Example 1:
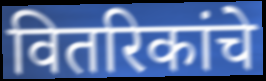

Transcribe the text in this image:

वितरिकांचे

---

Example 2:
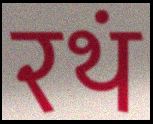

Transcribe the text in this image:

रथं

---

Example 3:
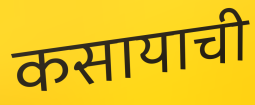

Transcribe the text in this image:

कसायाची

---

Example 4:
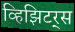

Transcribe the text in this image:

व्हिझिटर्स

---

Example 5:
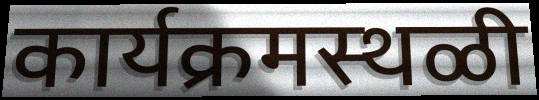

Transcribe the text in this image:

कार्यक्रमस्थळी